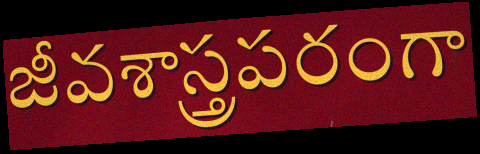
జీవశాస్త్రపరంగా